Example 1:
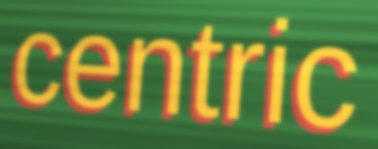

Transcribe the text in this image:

centric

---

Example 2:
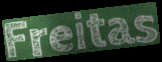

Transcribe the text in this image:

Freitas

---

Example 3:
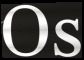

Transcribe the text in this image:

Os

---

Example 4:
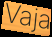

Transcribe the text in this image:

Vaja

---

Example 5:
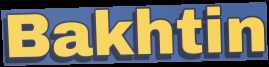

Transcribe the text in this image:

Bakhtin